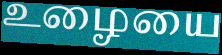
உழையை